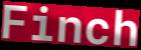
Finch